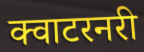
क्वाटरनरी